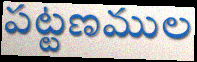
పట్టణముల